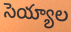
సెయ్యాల